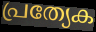
പ്രത്യേക